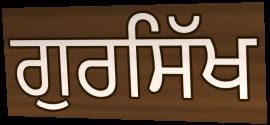
ਗੁਰਸਿੱਖ